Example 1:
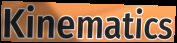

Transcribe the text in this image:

Kinematics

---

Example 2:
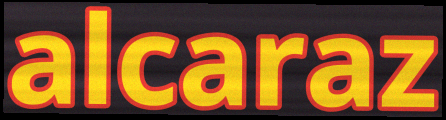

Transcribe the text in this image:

alcaraz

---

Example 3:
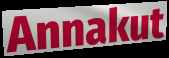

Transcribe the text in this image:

Annakut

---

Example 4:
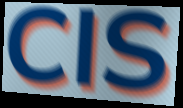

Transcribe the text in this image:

CIS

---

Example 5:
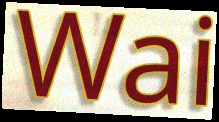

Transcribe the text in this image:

Wai